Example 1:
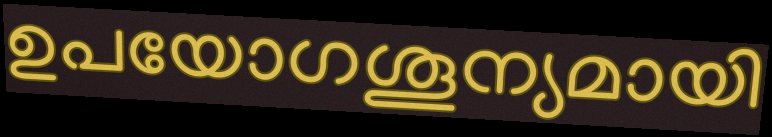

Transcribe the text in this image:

ഉപയോഗശൂന്യമായി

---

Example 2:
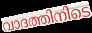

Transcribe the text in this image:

വാദത്തിനിടെ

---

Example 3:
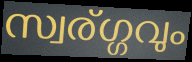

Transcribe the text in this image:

സ്വര്ഗ്ഗവും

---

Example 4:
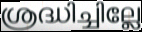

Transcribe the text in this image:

ശ്രദ്ധിച്ചില്ലേ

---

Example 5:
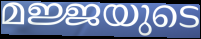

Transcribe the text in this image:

മജ്ജയുടെ